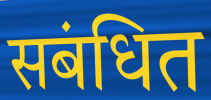
सबंधित